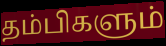
தம்பிகளும்